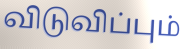
விடுவிப்பும்